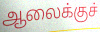
ஆலைக்குச்